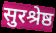
सुरश्रेष्ठ